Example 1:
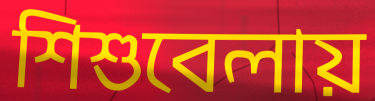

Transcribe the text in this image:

শিশুবেলায়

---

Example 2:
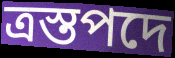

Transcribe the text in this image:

ত্রস্তপদে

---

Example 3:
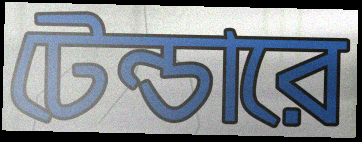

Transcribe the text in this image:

টেন্ডারে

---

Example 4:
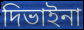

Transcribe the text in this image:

দিভাইনা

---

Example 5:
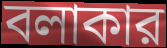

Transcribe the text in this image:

বলাকার